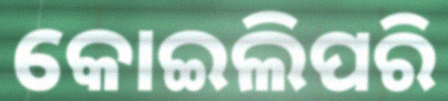
କୋଇଲିପରି